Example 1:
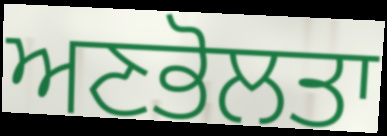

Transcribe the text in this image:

ਅਣਭੋਲਤਾ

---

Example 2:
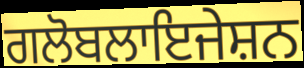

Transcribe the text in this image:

ਗਲੋਬਲਾਇਜੇਸ਼ਨ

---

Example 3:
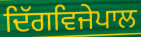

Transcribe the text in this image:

ਦਿੱਗਵਿਜੇਪਾਲ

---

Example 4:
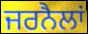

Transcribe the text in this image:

ਜਰਨੈਲਾਂ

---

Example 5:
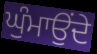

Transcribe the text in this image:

ਘੁੰਮਾਉਂਦੇ